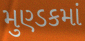
મુણ્ડકમાં